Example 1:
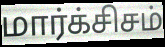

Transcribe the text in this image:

மார்க்சிசம்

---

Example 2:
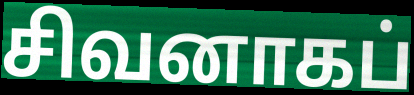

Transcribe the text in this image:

சிவனாகப்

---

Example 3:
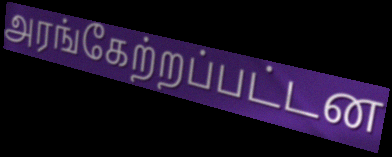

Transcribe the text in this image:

அரங்கேற்றப்பட்டன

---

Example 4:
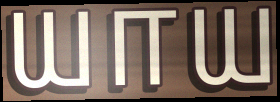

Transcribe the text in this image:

யாய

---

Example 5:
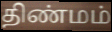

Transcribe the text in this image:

திண்மம்